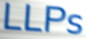
LLPs